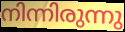
നിന്നിരുന്നു